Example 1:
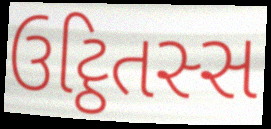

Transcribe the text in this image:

ઉટ્ઠિતસ્સ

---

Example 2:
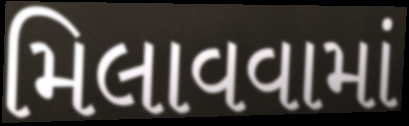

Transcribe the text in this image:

મિલાવવામાં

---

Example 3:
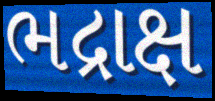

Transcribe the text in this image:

ભદ્રાક્ષ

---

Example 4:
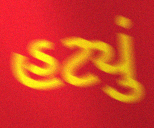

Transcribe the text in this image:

હટ્યું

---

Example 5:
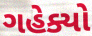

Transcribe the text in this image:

ગહેક્યો